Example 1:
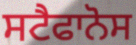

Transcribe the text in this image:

ਸਟੈਫਾਨੋਸ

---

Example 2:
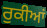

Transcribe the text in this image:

ਰੁਕੀਆਂ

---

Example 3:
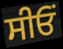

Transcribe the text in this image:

ਸੀਓਂ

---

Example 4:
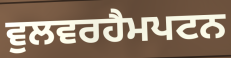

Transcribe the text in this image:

ਵੁਲਵਰਹੈਮਪਟਨ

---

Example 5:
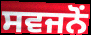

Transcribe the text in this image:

ਸਵਜਨੋਂ